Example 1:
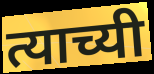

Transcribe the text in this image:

त्याच्यी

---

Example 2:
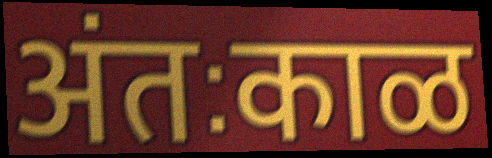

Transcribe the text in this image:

अंतःकाळ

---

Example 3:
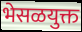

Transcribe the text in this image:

भेसळयुक्त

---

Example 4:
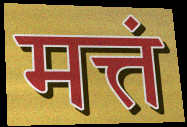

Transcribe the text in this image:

मत्तं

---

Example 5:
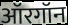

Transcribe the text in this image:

ऑरगॉन